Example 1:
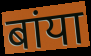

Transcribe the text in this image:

बांया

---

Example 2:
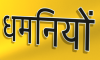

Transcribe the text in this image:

धमनियों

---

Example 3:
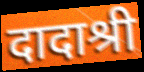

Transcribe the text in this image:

दादाश्री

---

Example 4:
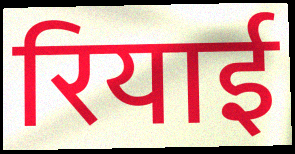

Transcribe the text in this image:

रियाई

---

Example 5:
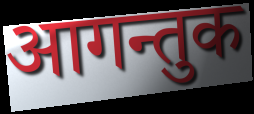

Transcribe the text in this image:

आगन्तुक